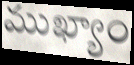
ముఖ్యాం